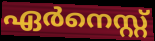
ഏർനെസ്റ്റ്